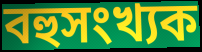
বহুসংখ্যক